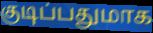
குடிப்பதுமாக